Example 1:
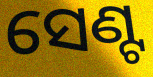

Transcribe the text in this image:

ସେଣ୍ଟ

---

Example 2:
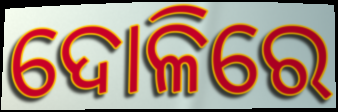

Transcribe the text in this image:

ଦୋଳିରେ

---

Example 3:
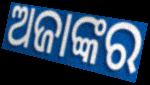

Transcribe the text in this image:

ଅଜାଙ୍କର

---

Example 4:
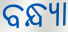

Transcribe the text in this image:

ବନ୍ଧ୍ୟା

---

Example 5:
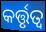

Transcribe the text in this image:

କର୍ତ୍ତୃତ୍ଵ